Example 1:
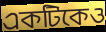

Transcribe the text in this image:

একটিকেও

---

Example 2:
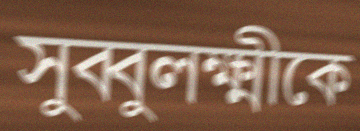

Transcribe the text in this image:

সুব্বুলক্ষ্মীকে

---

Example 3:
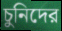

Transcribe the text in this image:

চুনিদের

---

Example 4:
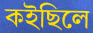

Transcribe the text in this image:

কইছিলে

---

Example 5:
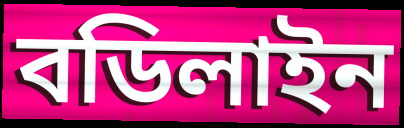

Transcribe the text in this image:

বডিলাইন